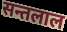
सन्तलाल